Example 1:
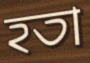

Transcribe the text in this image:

হতা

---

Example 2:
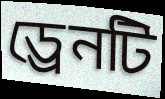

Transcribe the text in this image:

ড্রেনটি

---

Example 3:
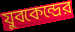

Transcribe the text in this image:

যুবকেন্দ্রের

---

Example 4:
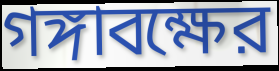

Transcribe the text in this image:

গঙ্গাবক্ষের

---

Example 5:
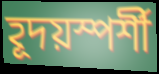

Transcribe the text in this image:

হূদয়স্পর্শী